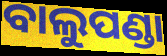
ବାଲୁପଣ୍ଡା